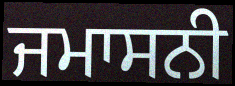
ਜਮਾਸਨੀ